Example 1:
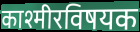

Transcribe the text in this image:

काश्मीरविषयक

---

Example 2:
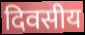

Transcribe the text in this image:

दिवसीय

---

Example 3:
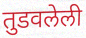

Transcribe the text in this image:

तुडवलेली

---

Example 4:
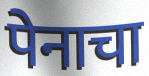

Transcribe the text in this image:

पेनाचा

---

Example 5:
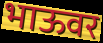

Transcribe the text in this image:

भाऊवर